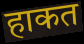
हाकत